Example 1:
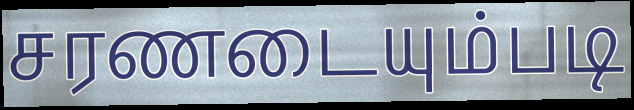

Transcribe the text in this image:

சரணடையும்படி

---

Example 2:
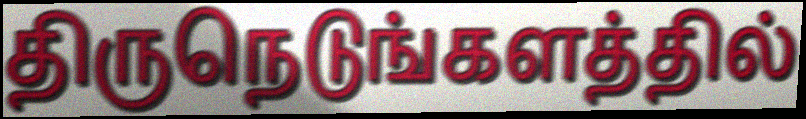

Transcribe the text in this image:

திருநெடுங்களத்தில்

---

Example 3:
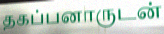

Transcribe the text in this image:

தகப்பனாருடன்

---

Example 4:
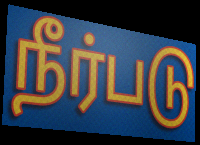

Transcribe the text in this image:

நீர்படு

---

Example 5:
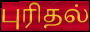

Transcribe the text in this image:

புரிதல்